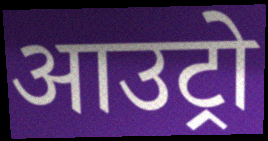
आउट्रो